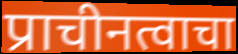
प्राचीनत्वाचा